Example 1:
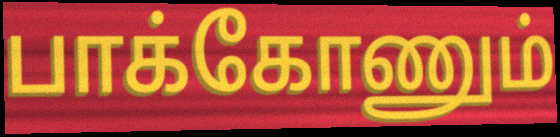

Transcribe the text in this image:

பாக்கோணும்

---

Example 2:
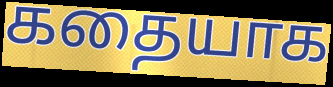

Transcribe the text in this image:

கதையாக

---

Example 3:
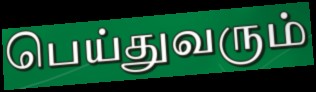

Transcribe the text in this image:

பெய்துவரும்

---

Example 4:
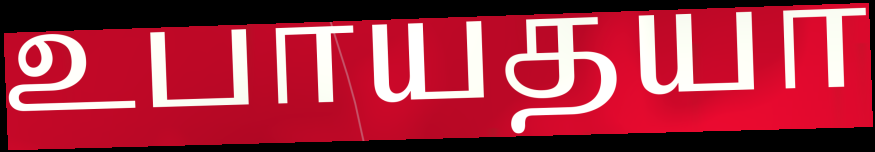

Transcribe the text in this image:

உபாயதயா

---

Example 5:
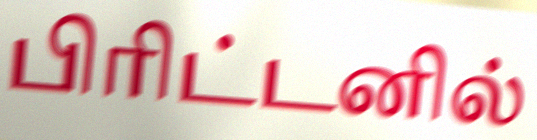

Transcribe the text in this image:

பிரிட்டனில்